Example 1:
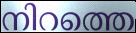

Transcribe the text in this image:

നിറത്തെ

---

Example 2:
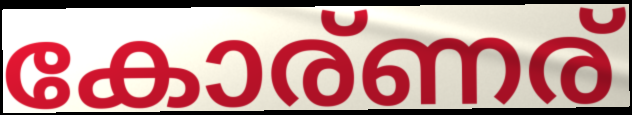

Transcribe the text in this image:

കോര്ണര്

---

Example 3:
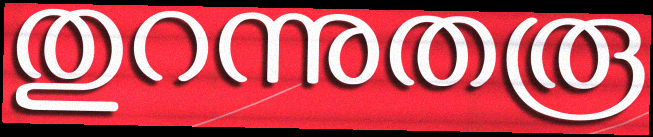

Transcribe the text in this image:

തുറന്നുതരൂ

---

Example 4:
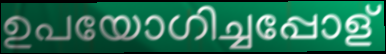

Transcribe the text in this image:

ഉപയോഗിച്ചപ്പോള്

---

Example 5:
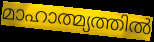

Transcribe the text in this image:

മാഹാത്മ്യത്തിൽ